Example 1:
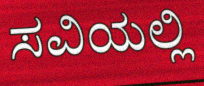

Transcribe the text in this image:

ಸವಿಯಲ್ಲಿ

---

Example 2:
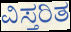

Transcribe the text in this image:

ವಿಸ್ತರಿತ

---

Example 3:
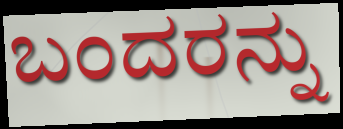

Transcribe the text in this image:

ಬಂದರನ್ನು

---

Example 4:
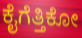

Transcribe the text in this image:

ಕೈಗೆತ್ತಿಕೋ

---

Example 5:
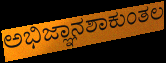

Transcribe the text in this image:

ಅಭಿಜ್ಞಾನಶಾಕುಂತಲ